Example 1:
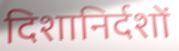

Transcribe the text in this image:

दिशानिर्दशों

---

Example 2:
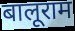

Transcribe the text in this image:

बालूराम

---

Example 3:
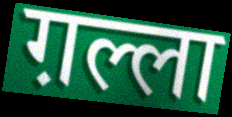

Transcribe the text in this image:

ग़ल्ला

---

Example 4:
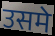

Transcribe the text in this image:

उसमे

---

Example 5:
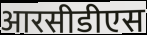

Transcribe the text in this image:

आरसीडीएस